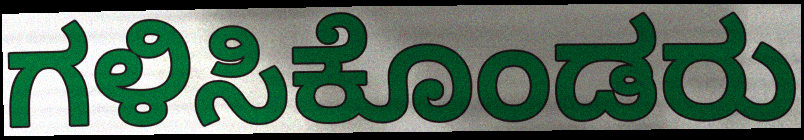
ಗಳಿಸಿಕೊಂಡರು